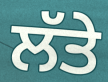
ਲੱਤੇ